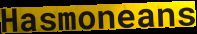
Hasmoneans